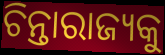
ଚିନ୍ତାରାଜ୍ୟକୁ